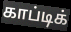
காப்டிக்